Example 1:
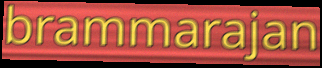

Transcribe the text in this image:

brammarajan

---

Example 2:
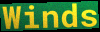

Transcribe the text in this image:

Winds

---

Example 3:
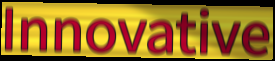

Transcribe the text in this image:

Innovative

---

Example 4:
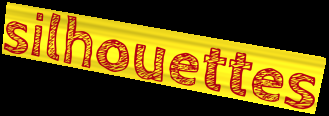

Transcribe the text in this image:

silhouettes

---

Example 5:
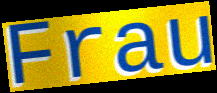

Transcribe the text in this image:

Frau